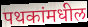
पथकांमधील